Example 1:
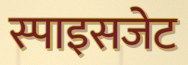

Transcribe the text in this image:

स्‍पाइसजेट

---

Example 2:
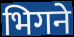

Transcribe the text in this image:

भिगने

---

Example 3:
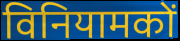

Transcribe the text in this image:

विनियामकों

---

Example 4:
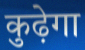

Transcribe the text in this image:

कुढ़ेगा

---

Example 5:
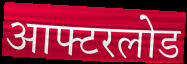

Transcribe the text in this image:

आफ्टरलोड